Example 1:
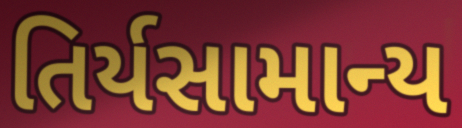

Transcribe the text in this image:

તિર્યસામાન્ય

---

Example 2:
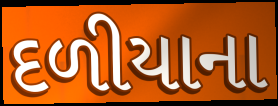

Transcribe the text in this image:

દળીયાના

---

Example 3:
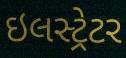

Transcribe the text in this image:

ઇલસ્ટ્રેટર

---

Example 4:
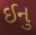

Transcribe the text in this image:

ઈનુ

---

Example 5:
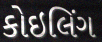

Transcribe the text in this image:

કોઇલિંગ